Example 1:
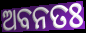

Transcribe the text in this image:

ଅବନତଃ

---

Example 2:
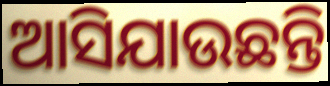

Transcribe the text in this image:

ଆସିଯାଉଛନ୍ତି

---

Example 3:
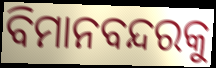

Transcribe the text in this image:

ବିମାନବନ୍ଦରକୁ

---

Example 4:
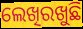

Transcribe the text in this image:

ଲେଖିରଖୁଛି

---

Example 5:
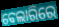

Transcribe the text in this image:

ବେଲାରିରେ